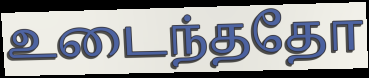
உடைந்ததோ